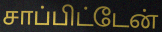
சாப்பிட்டேன்